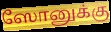
ஸோனுக்கு